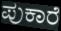
ಪುಕಾರೆ